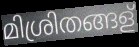
മിശ്രിതങ്ങള്